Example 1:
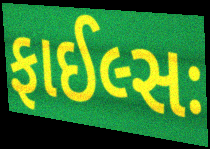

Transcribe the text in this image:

ફાઈલ્સઃ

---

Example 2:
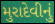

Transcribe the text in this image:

મુરાદેવીનું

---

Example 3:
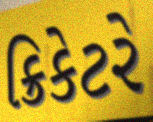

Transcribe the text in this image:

ક્રિકેટરે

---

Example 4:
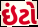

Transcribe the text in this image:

ઇંટો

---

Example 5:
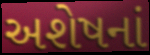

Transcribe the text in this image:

અશેષનાં